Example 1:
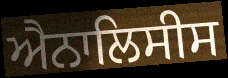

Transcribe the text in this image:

ਐਨਾਲਿਸੀਸ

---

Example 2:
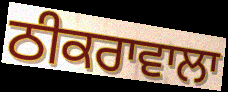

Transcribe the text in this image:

ਠੀਕਰਾਵਾਲਾ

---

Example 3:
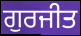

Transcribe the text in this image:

ਗੁਰਜੀਤ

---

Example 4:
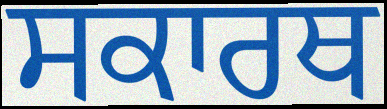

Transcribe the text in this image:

ਸਕਾਰਥ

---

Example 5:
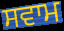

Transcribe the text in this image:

ਸਵਾਮ